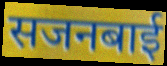
सजनबाई